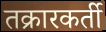
तक्रारकर्ती